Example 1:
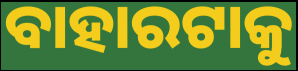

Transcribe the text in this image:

ବାହାରଟାକୁ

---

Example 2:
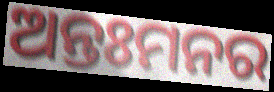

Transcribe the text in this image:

ଅନ୍ତଃମନର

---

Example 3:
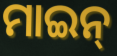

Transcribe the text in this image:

ମାଇନ୍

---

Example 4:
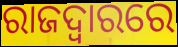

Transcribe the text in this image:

ରାଜଦ୍ୱାରରେ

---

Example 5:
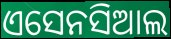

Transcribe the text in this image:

ଏସେନସିଆଲ